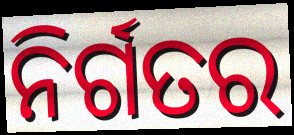
ନିର୍ଗତର